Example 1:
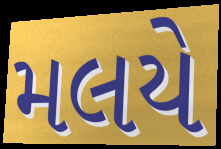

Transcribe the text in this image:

મલયે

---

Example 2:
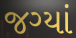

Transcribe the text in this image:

જગ્યાં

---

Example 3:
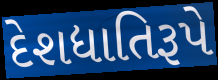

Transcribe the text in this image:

દેશદ્યાતિરૂપે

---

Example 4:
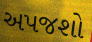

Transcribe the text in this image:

અપજશો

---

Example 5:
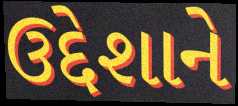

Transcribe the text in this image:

ઉદ્દેશાને